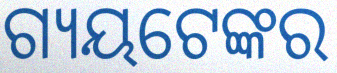
ଗ୍ୟୟଟେଙ୍କର